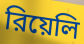
রিয়েলি